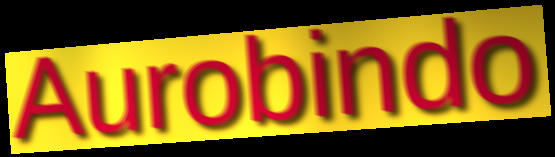
Aurobindo